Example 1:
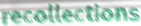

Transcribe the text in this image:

recollections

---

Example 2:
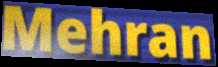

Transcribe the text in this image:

Mehran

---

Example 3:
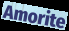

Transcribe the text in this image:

Amorite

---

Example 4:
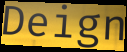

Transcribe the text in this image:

Deign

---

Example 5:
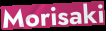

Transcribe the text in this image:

Morisaki